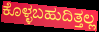
ಕೊಳ್ಳಬಹುದಿತ್ತಲ್ಲ